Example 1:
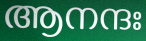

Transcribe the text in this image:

ആനന്ദഃ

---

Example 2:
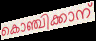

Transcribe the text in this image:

കൊഞ്ചിക്കാന്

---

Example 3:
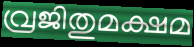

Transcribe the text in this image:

വ്രജിതുമക്ഷമ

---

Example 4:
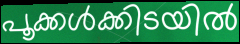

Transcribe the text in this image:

പൂക്കൾക്കിടയിൽ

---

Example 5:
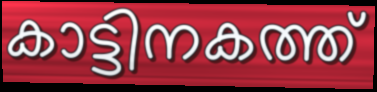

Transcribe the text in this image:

കാട്ടിനകത്ത്